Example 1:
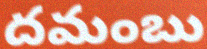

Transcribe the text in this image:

దమంబు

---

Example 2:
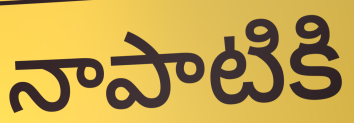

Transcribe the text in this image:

నాపాటికి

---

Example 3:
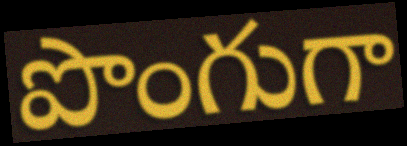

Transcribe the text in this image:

పొంగుగా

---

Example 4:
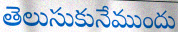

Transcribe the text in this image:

తెలుసుకునేముందు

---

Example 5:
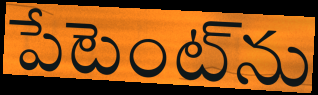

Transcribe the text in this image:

పేటెంట్‌ను